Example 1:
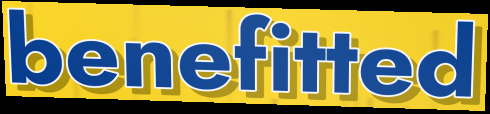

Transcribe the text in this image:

benefitted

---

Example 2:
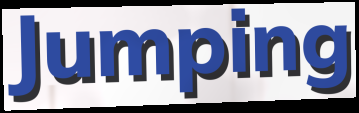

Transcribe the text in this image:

Jumping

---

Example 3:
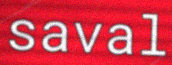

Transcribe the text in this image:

saval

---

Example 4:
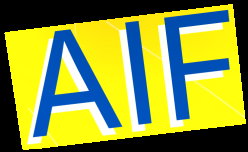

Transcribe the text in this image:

AIF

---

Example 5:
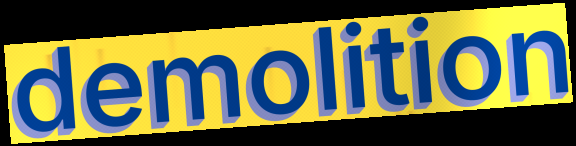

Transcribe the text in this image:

demolition